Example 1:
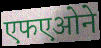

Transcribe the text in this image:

एफएओने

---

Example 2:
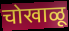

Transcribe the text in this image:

चोखाळू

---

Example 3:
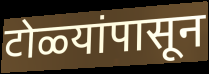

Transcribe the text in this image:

टोळ्यांपासून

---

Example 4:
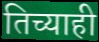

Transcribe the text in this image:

तिच्याही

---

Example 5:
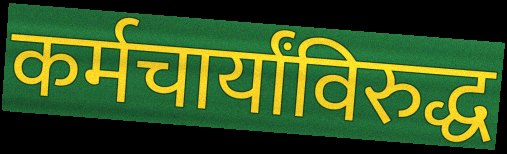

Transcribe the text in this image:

कर्मचार्यांविरुद्ध